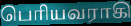
பெரியவராகி